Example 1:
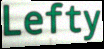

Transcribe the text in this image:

Lefty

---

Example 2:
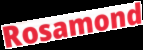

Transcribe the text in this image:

Rosamond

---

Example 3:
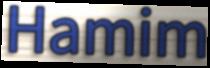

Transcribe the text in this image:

Hamim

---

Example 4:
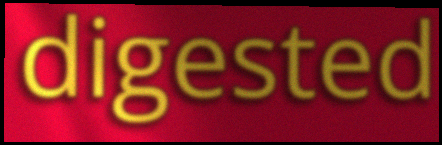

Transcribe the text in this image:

digested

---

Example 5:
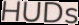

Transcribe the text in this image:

HUDs